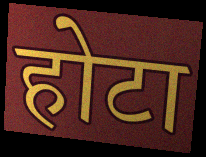
होटा